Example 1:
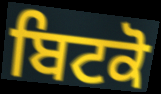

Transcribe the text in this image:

ਬਿਟਕੋ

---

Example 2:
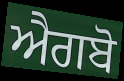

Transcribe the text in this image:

ਐਗਬੋ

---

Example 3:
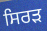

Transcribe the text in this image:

ਸਿਰੜ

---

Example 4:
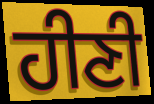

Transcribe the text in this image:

ਹੀਣੀ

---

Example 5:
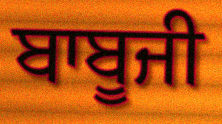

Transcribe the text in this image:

ਬਾਬੂਜੀ